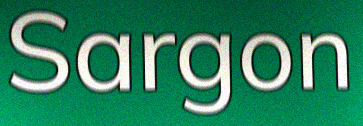
Sargon